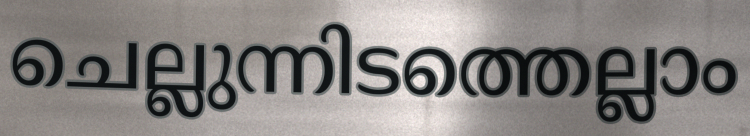
ചെല്ലുന്നിടത്തെല്ലാം